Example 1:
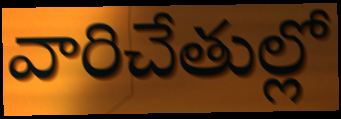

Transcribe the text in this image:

వారిచేతుల్లో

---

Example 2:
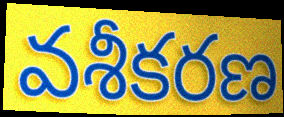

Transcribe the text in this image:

వశీకరణ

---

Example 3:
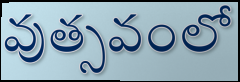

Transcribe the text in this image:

వుత్సవంలో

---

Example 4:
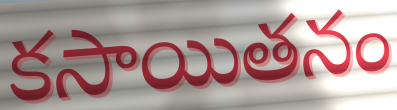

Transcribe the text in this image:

కసాయితనం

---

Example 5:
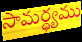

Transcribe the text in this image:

సామర్ధ్యము